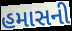
હમાસની